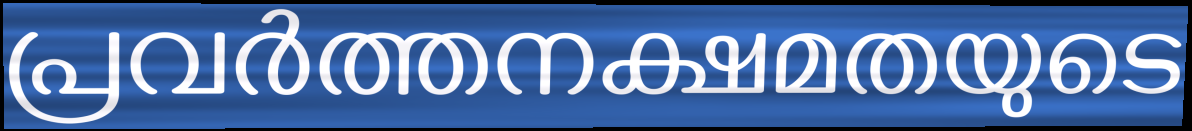
പ്രവർത്തനക്ഷമതയുടെ